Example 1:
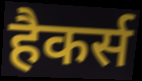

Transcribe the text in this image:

हैकर्स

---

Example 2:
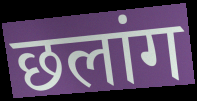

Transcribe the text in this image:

छलांग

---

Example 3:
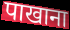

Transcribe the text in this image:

पाखाना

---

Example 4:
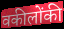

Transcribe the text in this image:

वकीलोंकी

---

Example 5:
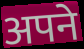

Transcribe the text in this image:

अपने